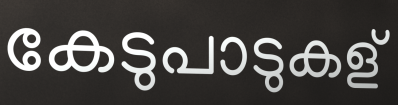
കേടുപാടുകള്